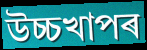
উচ্চখাপৰ